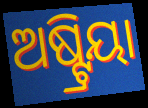
ଅଷ୍ଟ୍ରିୟା